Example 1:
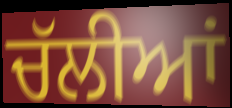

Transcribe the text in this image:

ਚੱਲੀਆਂ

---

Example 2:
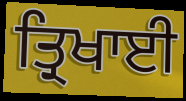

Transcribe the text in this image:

ਤ੍ਰਿਖਾਈ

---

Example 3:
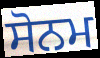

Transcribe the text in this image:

ਸੋਨਮ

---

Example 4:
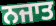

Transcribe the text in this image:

ਨਜਾਤ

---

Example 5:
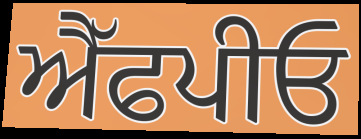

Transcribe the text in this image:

ਐੱਫਪੀਓ